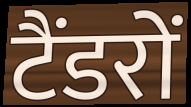
टैंडरों